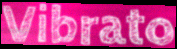
Vibrato